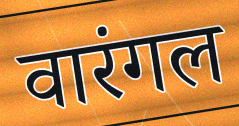
वारंगल